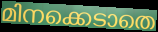
മിനക്കെടാതെ